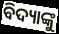
ବିଦ୍ୟାଙ୍କୁ